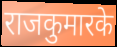
राजकुमारके